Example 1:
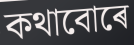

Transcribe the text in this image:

কথাবোৰে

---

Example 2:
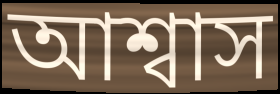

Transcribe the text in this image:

আশ্বাস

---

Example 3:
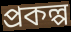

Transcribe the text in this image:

প্ৰকল্প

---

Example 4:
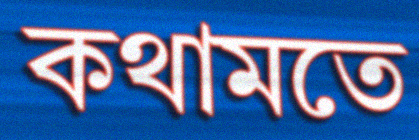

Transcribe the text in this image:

কথামতে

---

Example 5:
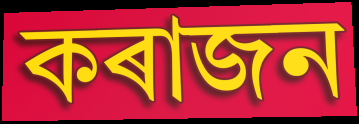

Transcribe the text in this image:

কৰাজন